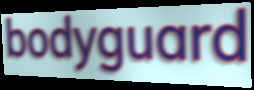
bodyguard